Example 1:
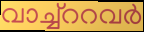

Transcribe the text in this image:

വാച്ച്ററവർ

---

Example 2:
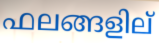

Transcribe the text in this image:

ഫലങ്ങളില്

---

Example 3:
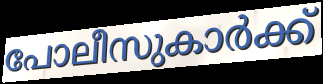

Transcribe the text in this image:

പോലീസുകാർക്ക്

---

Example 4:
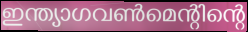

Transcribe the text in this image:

ഇന്ത്യാഗവൺമെന്റിന്റെ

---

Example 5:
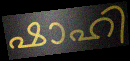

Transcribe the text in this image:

ഷാഹി